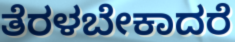
ತೆರಳಬೇಕಾದರೆ